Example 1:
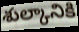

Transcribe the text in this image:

శుల్కానికి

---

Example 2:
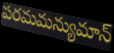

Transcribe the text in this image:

పరమమన్యుమాన్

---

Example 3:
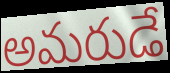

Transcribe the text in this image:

అమరుడే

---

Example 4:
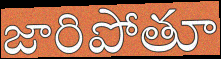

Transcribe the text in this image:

జారిపోతూ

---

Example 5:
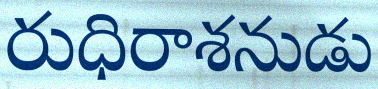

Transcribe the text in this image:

రుధిరాశనుడు